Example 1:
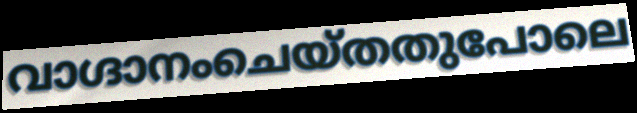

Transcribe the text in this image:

വാഗ്ദാനംചെയ്തതുപോലെ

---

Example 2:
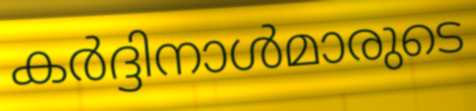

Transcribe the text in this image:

കർദ്ദിനാൾമാരുടെ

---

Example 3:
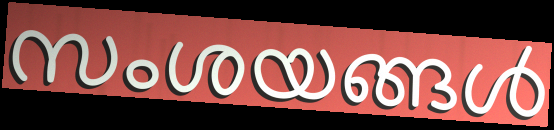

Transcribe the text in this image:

സംശയങ്ങൾ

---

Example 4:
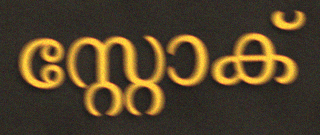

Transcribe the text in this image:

സ്റ്റോക്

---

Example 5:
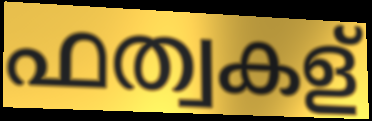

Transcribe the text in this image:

ഫത്വകള്